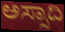
ಅಸ್ಸಾದಿ